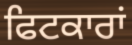
ਫਿਟਕਾਰਾਂ